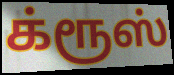
க்ரூஸ்